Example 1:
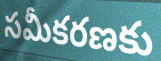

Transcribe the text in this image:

సమీకరణకు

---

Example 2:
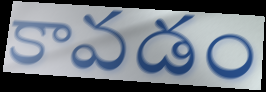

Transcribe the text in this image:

కావడం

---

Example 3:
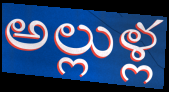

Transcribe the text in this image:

అల్లుళ్ల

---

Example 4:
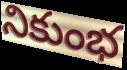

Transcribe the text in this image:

నికుంభ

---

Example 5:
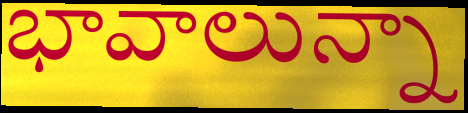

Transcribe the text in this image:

భావాలున్నా